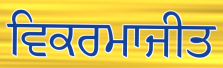
ਵਿਕਰਮਾਜੀਤ